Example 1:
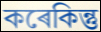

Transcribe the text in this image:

কৰেকিন্তু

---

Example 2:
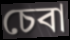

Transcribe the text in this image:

চেবা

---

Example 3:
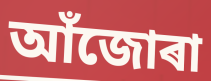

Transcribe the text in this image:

আঁজোৰা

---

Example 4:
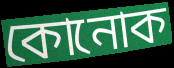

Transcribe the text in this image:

কোনোক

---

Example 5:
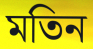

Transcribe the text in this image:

মতিন